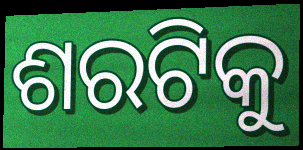
ଶରଟିକୁ